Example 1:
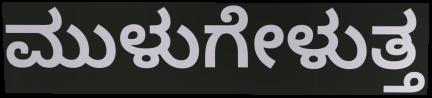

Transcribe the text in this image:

ಮುಳುಗೇಳುತ್ತ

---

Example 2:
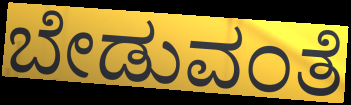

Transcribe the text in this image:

ಬೇಡುವಂತೆ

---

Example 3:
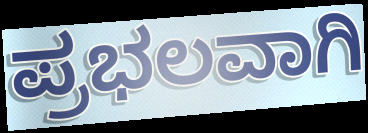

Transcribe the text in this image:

ಪ್ರಭಲವಾಗಿ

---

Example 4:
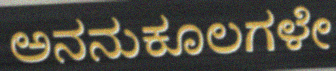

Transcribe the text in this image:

ಅನನುಕೂಲಗಳೇ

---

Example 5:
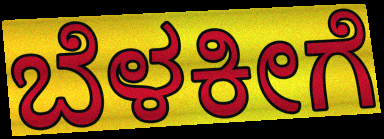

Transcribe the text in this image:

ಬೆಳಕೀಗೆ